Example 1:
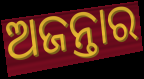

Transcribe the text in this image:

ଅଜନ୍ତାର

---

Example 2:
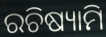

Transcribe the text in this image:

ରଚିଷ୍ୟାମି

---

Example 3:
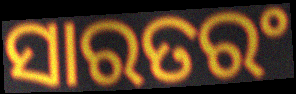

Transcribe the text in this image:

ସାରତରଂ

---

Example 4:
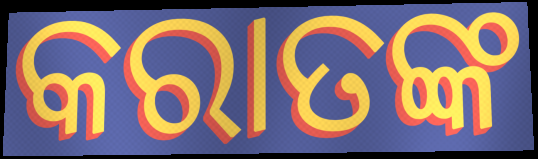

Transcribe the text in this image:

କରାତଙ୍କ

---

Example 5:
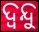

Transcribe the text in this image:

ଦ୍ଵନ୍ଦୁ